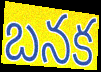
బనక